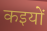
कइयों